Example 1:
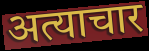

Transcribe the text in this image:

अत्‍याचार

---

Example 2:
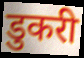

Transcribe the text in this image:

डुकरी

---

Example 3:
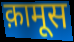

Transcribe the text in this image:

क़ामूस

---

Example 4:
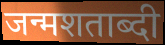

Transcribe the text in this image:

जन्मशताब्दी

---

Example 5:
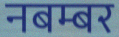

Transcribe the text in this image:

नबम्बर